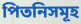
পিতনিসমূহ